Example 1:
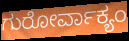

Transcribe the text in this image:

ಗುರೋರ್ವಾಕ್ಯಂ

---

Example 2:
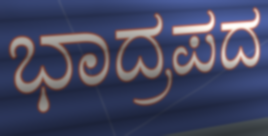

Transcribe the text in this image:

ಭಾದ್ರಪದ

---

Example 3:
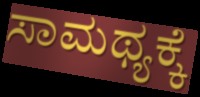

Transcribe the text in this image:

ಸಾಮಥ್ಯಕ್ಕೆ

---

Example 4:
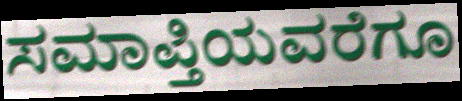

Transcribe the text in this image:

ಸಮಾಪ್ತಿಯವರೆಗೂ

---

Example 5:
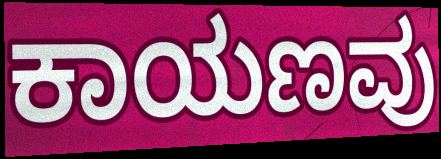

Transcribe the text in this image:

ಕಾಯಣವು